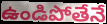
ఉండిపోతేనే